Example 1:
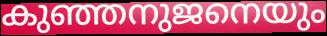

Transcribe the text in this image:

കുഞ്ഞനുജനെയും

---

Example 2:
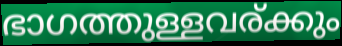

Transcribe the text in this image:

ഭാഗത്തുള്ളവര്ക്കും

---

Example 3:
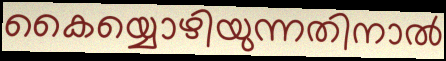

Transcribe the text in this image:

കൈയ്യൊഴിയുന്നതിനാൽ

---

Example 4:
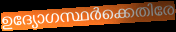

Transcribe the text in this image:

ഉദ്യോഗസ്ഥർക്കെതിരേ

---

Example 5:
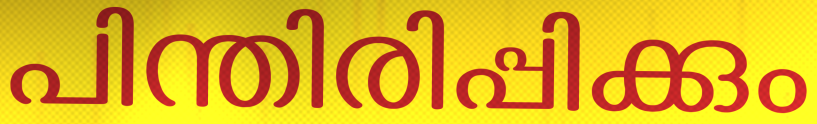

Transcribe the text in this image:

പിന്തിരിപ്പിക്കും